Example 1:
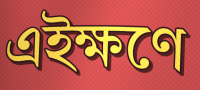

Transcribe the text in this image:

এইক্ষণে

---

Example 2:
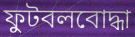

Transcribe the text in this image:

ফুটবলবোদ্ধা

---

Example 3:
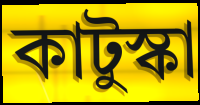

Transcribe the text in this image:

কাটুস্কা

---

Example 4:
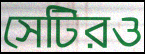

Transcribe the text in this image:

সেটিরও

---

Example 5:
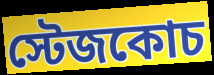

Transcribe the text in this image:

স্টেজকোচ